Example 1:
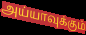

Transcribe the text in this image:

அய்யாவுக்கும்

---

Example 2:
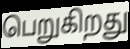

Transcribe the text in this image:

பெறுகிறது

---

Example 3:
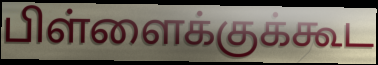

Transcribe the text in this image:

பிள்ளைக்குக்கூட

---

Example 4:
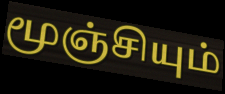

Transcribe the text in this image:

மூஞ்சியும்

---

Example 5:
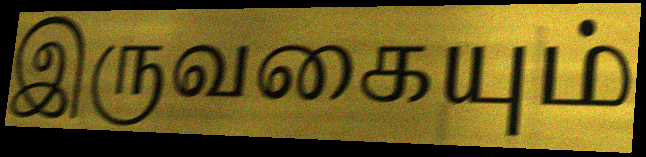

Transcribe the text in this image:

இருவகையும்